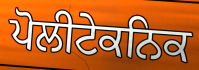
ਪੋਲੀਟੇਕਨਿਕ